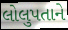
લોલુપતાને